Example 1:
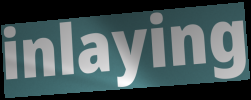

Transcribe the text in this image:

inlaying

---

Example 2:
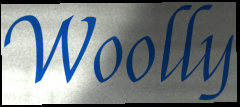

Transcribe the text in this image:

Woolly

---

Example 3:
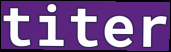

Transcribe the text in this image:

titer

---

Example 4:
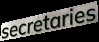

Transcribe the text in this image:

secretaries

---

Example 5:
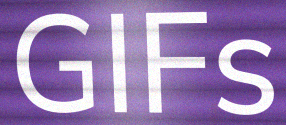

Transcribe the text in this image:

GIFs